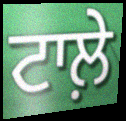
ਟਾਲ਼ੇ